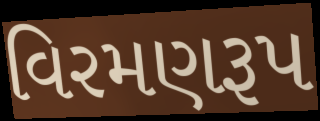
વિરમણરૂપ